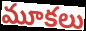
మూకలు